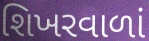
શિખરવાળાં